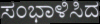
ಸಂಭಾಳಿಸಿದ